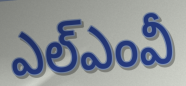
ఎల్ఎంవీ